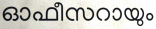
ഓഫീസറായും